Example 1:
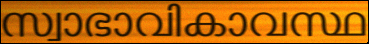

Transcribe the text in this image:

സ്വാഭാവികാവസ്ഥ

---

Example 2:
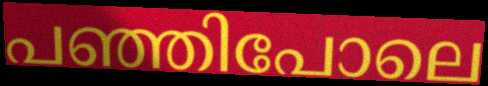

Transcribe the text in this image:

പഞ്ഞിപോലെ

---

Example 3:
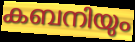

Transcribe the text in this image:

കബനിയും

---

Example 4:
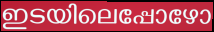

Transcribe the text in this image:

ഇടയിലെപ്പോഴോ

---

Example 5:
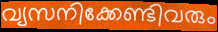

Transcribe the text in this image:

വ്യസനിക്കേണ്ടിവരും